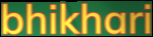
bhikhari